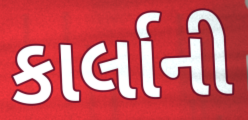
કાર્લાની